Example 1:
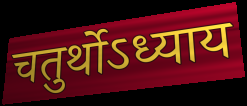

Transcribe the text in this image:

चतुर्थोऽध्याय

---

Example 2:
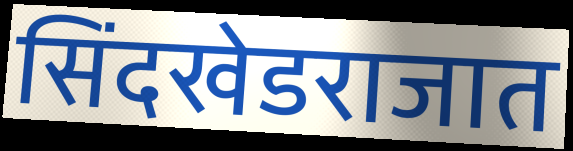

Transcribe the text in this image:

सिंदखेडराजात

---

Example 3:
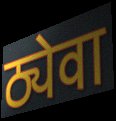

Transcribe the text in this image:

ठ्येवा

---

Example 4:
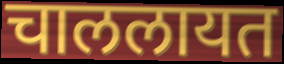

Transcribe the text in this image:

चाललायत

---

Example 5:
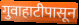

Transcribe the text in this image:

गुवाहाटीपासून